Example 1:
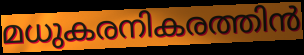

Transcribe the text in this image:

മധുകരനികരത്തിൻ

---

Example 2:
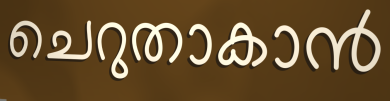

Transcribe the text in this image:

ചെറുതാകാൻ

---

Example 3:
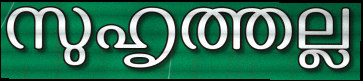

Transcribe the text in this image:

സുഹൃത്തല്ല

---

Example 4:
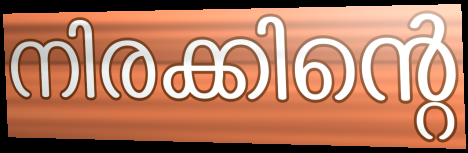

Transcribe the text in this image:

നിരക്കിന്റെ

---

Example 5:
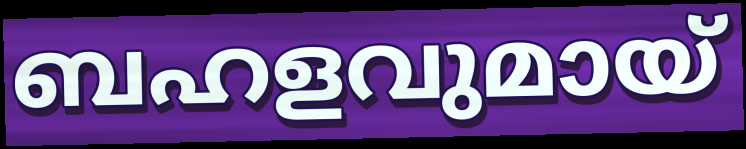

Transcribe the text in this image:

ബഹളവുമായ്